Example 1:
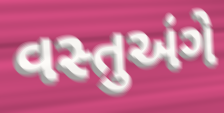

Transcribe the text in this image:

વસ્તુઅંગે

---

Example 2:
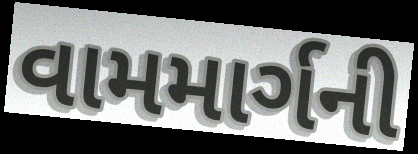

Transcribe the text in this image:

વામમાર્ગની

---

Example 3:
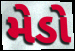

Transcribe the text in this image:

મેડો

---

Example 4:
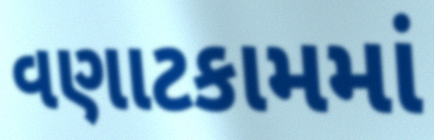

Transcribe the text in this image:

વણાટકામમાં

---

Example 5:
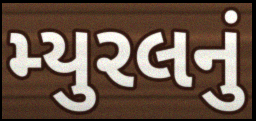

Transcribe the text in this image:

મ્યુરલનું